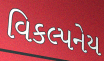
વિકલ્પનેય